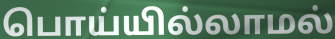
பொய்யில்லாமல்